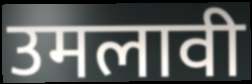
उमलावी